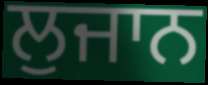
ਲੁਜਾਨ